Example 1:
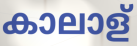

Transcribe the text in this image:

കാലാള്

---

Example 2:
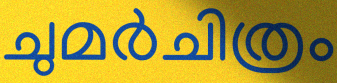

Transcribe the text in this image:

ചുമർചിത്രം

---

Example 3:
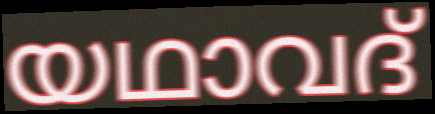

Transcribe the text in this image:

യഥാവദ്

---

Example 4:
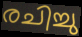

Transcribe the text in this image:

രചിച്ചു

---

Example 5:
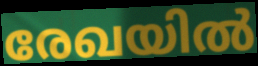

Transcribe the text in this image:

രേഖയിൽ